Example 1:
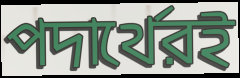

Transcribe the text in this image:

পদার্থেরই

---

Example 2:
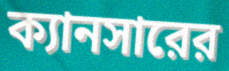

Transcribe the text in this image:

ক্যানসারের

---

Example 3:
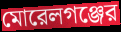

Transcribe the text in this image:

মোরেলগঞ্জের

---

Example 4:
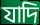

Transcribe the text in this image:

যাদি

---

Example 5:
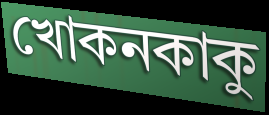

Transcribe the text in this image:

খোকনকাকু